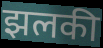
झलकी